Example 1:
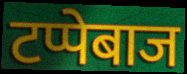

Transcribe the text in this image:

टप्पेबाज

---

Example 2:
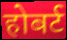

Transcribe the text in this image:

होबर्ट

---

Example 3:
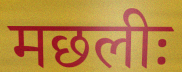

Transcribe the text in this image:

मछलीः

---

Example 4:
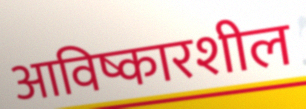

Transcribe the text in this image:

आविष्कारशील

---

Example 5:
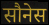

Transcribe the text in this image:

सौनेस